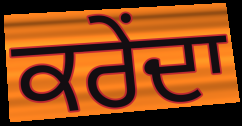
ਕਰੇਂਦਾ